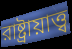
রাষ্ট্রায়াত্ত্ব